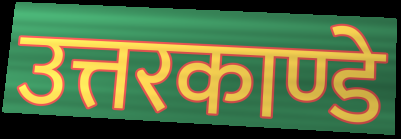
उत्तरकाण्डे